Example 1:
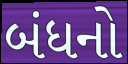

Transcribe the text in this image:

બંધનો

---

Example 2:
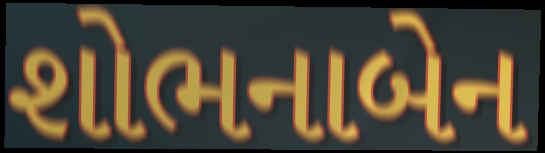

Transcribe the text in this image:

શોભનાબેન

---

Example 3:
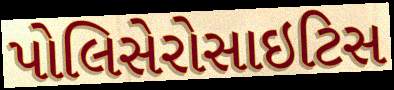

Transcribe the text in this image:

પોલિસેરોસાઇટિસ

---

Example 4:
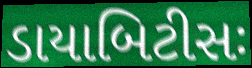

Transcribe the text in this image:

ડાયાબિટીસઃ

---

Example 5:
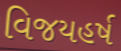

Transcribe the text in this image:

વિજયહર્ષ